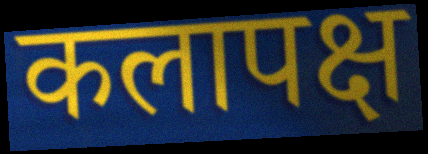
कलापक्ष